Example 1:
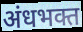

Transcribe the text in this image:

अंधभक्त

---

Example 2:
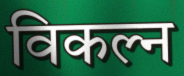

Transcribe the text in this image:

विकल्न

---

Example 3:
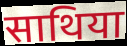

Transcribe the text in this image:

साथिया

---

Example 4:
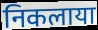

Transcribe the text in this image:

निकलाया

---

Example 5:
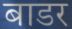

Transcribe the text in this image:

बाडर